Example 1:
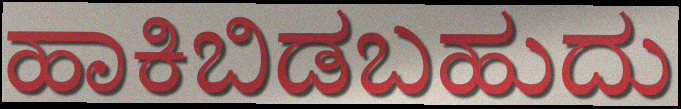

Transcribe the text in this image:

ಹಾಕಿಬಿಡಬಹುದು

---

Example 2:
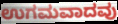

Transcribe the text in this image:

ಉಗಮವಾದವು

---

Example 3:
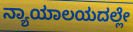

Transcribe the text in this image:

ನ್ಯಾಯಾಲಯದಲ್ಲೇ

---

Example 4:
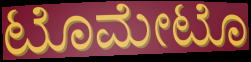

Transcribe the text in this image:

ಟೊಮೇಟೊ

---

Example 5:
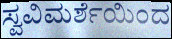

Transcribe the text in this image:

ಸ್ವವಿಮರ್ಶೆಯಿಂದ